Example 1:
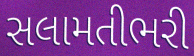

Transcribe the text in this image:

સલામતીભરી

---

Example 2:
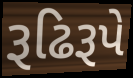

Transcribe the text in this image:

રૂઢિરૂપે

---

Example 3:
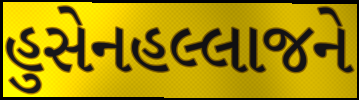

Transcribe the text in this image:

હુસેનહલ્લાજને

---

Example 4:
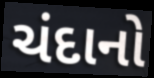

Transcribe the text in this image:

ચંદાનો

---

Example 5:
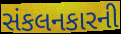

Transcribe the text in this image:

સંકલનકારની